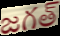
జగత్